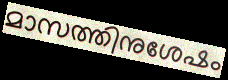
മാസത്തിനുശേഷം